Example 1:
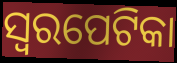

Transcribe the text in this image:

ସ୍ୱରପେଟିକା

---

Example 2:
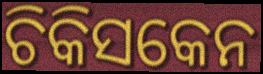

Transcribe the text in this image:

ଚିକିସକେନ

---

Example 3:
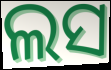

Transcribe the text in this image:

ଲସ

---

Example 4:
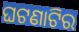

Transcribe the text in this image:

ଘଟଣାଟିର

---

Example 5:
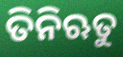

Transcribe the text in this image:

ତିନିଋତୁ